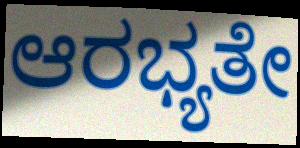
ಆರಭ್ಯತೇ